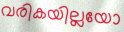
വരികയില്ലയോ